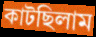
কাটছিলাম